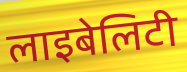
लाइबेलिटी